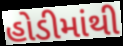
હોડીમાંથી